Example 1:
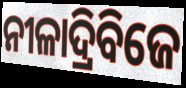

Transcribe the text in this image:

ନୀଳାଦ୍ରିବିଜେ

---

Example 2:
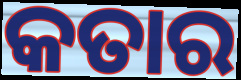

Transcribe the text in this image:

କତାର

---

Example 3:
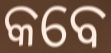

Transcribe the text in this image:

କବେ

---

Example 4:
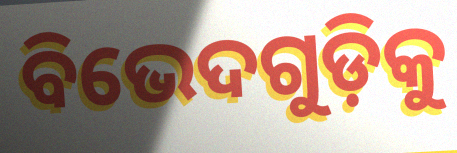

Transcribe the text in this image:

ବିଭେଦଗୁଡ଼ିକୁ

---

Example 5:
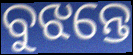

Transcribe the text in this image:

ବୁଝନ୍ତେ